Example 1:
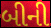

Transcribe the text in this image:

બીની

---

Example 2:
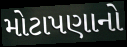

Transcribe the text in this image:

મોટાપણાનો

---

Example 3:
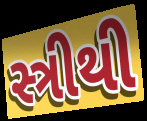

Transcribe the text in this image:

સ્ત્રીથી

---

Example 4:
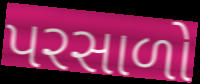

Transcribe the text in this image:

પરસાળો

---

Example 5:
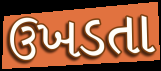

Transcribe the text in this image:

ઉખડતા